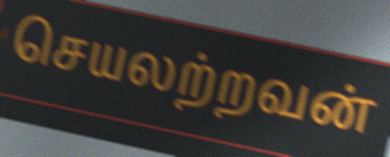
செயலற்றவன்